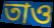
তাও